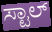
ಸ್ಟಾಲ್